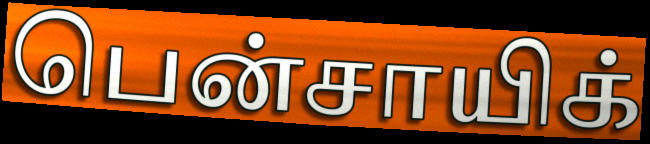
பென்சாயிக்